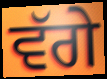
ਵੱਗੇ